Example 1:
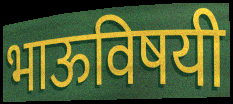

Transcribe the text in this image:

भाऊविषयी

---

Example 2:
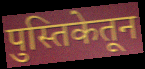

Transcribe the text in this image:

पुस्तिकेतून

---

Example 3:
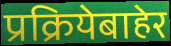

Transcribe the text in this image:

प्रक्रियेबाहेर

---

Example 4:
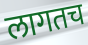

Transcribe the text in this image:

लागतच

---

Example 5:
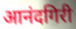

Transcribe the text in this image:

आनंदगिरी